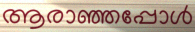
ആരാഞ്ഞപ്പോൾ